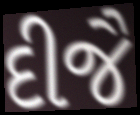
દીજૈ